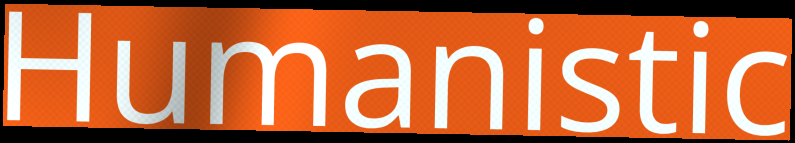
Humanistic